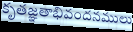
కృతజ్ఞతాభివందనములు